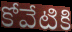
కోవేటికి